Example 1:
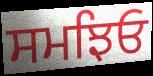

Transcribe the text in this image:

ਸਮਝਿਓ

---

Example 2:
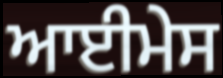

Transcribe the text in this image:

ਆਈਮੇਸ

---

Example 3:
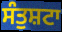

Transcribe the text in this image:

ਸੰਤੁਸ਼ਟਾ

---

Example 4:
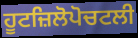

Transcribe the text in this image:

ਹੂਟਜ਼ਿਲੋਪੋਚਟਲੀ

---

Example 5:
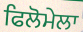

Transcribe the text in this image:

ਫਿਲੋਮੇਲਾ